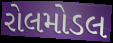
રોલમોડલ